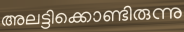
അലട്ടിക്കൊണ്ടിരുന്നു